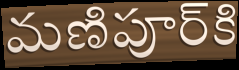
మణిపూర్‌కి